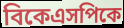
বিকেএসপিকে